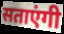
सताएंगी